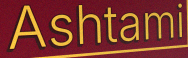
Ashtami